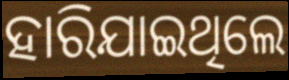
ହାରିଯାଇଥିଲେ